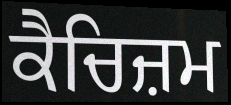
ਕੈਚਿਜ਼ਮ